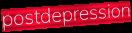
postdepression